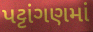
પટ્ટાંગણમાં